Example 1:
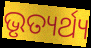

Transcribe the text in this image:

ଭୃତ୍ୟର୍ଥ୍ୟ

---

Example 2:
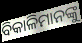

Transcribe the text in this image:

ବିକାଳିମାନଙ୍କୁ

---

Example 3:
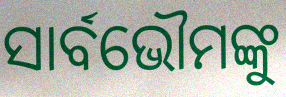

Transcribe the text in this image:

ସାର୍ବଭୌମଙ୍କୁ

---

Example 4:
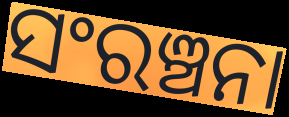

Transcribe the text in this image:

ସଂରଞ୍ଚନା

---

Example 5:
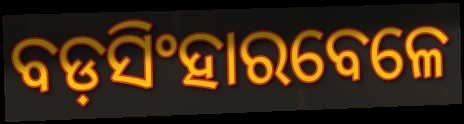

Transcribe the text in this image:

ବଡ଼ସିଂହାରବେଳେ